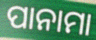
ପାନାମା